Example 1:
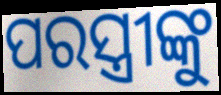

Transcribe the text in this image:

ପରସ୍ତ୍ରୀଙ୍କୁ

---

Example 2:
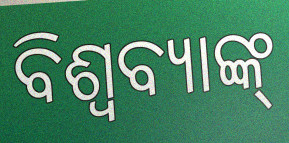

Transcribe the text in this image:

ବିଶ୍ଵବ୍ୟାଙ୍କ୍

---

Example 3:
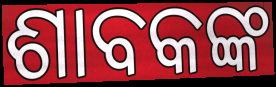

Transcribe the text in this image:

ଶାବକଙ୍କ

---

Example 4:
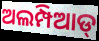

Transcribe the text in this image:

ଅଲମ୍ପିଆଡ୍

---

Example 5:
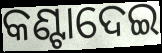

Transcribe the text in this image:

କଣ୍ଟାଦେଇ